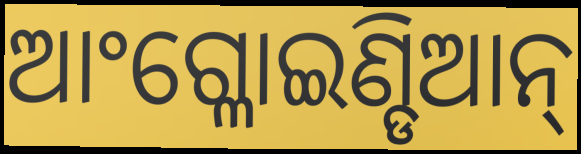
ଆଂଗ୍ଳୋଇଣ୍ଡିଆନ୍